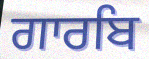
ਗਾਰਬਿ